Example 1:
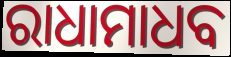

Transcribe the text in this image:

ରାଧାମାଧବ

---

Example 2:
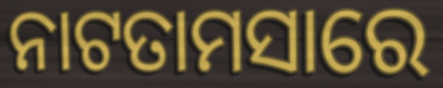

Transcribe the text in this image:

ନାଟତାମସାରେ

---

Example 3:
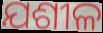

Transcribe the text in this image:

ଯଶୀଳ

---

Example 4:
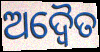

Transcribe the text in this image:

ଅଦ୍ୱୈତ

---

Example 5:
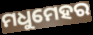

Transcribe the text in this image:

ମଧୁମେହର